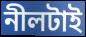
নীলটাই